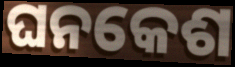
ଘନକେଶ